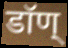
डॉण्